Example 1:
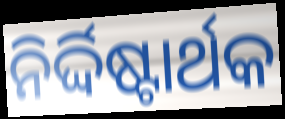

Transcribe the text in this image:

ନିର୍ଦ୍ଦିଷ୍ଟାର୍ଥକ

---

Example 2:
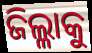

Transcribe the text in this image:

ଜିଲ୍ଳାକୁ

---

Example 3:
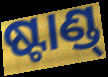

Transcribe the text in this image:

ଷ୍ଟାଣ୍ଡ୍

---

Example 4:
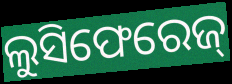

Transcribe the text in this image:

ଲୁସିଫେରେଜ୍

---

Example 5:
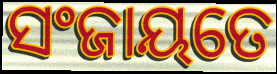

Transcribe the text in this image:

ସଂଜାୟତେ